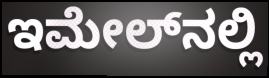
ಇಮೇಲ್‌ನಲ್ಲಿ